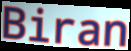
Biran